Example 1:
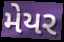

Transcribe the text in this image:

મેયર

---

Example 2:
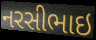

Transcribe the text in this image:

નરસીભાઇ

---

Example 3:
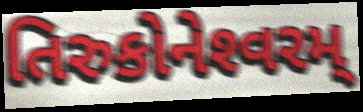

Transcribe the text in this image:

તિરુકોનેશ્‍વરમ્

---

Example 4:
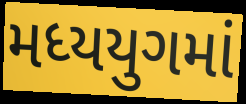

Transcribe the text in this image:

મધ્યયુગમાં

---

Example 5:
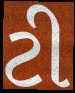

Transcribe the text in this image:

ટી